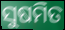
ସୁଷମିତ